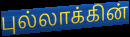
புல்லாக்கின்